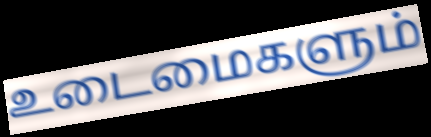
உடைமைகளும்